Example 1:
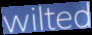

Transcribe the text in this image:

wilted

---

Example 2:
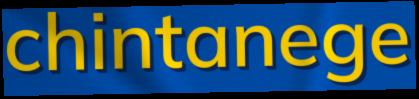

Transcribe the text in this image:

chintanege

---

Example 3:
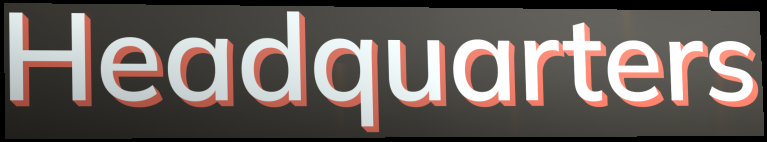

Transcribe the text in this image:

Headquarters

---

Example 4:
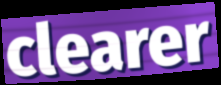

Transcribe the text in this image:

clearer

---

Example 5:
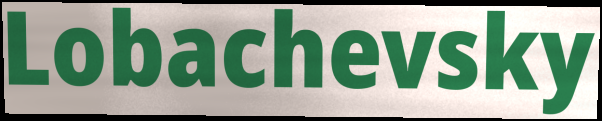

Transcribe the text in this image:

Lobachevsky